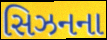
સિઝનના